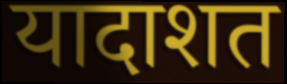
यादाशत